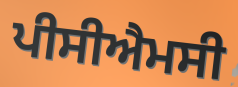
ਪੀਸੀਐਮਸੀ